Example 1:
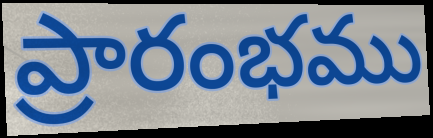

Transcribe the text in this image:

ప్రారంభము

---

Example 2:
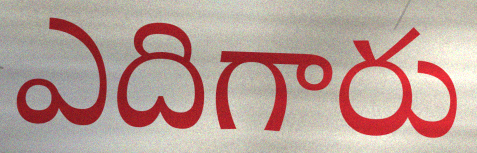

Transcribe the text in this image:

ఎదిగారు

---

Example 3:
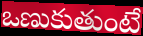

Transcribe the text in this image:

ఒణుకుతుంటే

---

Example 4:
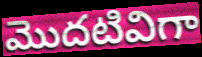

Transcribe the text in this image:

మొదటివిగా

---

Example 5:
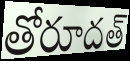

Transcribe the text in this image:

తోరూదత్